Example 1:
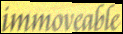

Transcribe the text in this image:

immoveable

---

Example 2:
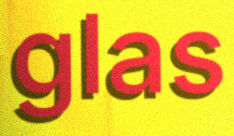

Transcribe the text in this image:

glas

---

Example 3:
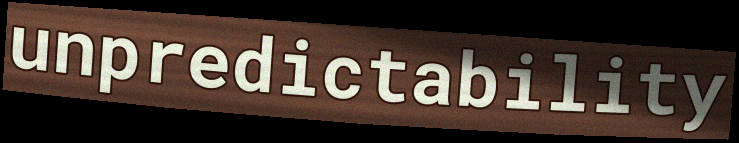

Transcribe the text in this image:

unpredictability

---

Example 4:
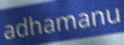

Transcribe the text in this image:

adhamanu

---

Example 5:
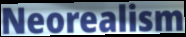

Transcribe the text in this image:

Neorealism